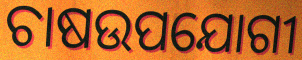
ଚାଷଉପଯୋଗୀ